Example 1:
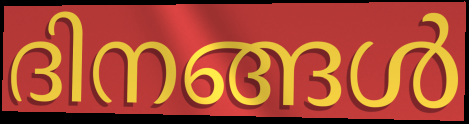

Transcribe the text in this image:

ദിനങ്ങൾ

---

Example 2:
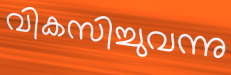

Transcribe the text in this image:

വികസിച്ചുവന്നു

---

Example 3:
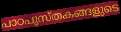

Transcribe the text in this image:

പാഠപുസ്തകങ്ങളുടെ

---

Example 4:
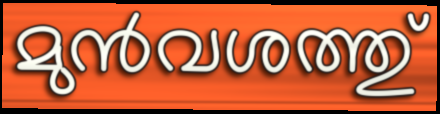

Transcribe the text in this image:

മുൻവശത്തു്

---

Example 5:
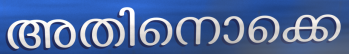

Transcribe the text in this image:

അതിനൊക്കെ